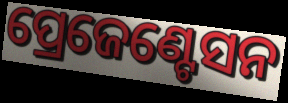
ପ୍ରେଜେଣ୍ଟେସନ